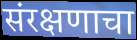
संरक्षणाचा